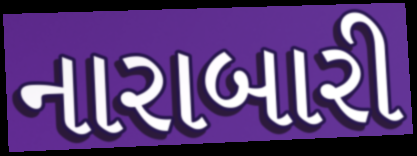
નારાબારી